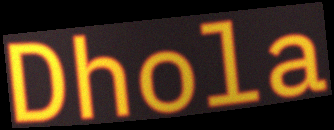
Dhola